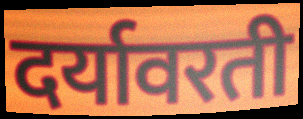
दर्यावरती